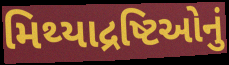
મિથ્યાદ્રષ્ટિઓનું